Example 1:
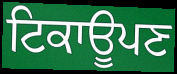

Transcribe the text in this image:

ਟਿਕਾਊਪਣ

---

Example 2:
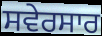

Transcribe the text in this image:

ਸਵੇਰਸਾਰ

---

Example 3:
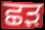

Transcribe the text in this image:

ਛੜ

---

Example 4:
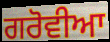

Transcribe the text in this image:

ਗਰੋਵੀਆ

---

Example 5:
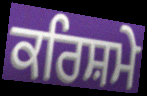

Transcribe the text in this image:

ਕਰਿਸ਼ਮੇ